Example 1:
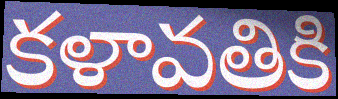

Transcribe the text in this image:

కళావతికి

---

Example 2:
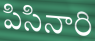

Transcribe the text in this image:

పిసినారి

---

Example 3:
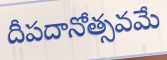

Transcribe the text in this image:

దీపదానోత్సవమే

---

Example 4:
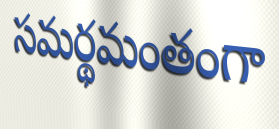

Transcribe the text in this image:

సమర్థమంతంగా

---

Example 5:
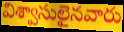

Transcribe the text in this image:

విశ్వాసులైనవారు